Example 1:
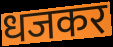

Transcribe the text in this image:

धजकर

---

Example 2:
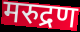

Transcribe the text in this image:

मरुद्रण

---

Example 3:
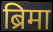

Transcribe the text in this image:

ब्रिमा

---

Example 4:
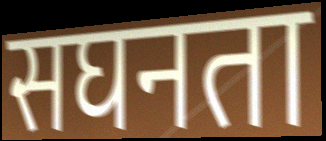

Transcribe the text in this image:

सघनता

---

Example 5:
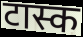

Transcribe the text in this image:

टास्क